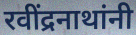
रवींद्रनाथांनी